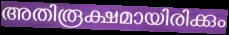
അതിരൂക്ഷമായിരിക്കും